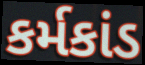
કર્મકાંડ